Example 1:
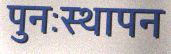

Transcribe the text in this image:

पुनःस्थापन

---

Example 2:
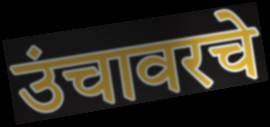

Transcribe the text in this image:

उंचावरचे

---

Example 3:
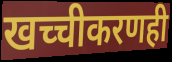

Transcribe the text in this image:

खच्चीकरणही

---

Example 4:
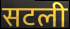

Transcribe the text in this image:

सटली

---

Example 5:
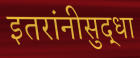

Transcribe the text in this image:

इतरांनीसुद्धा